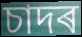
চাদৰ